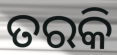
ତରକି